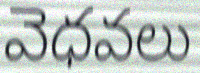
వెధవలు